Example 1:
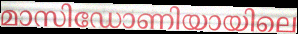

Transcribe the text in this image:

മാസിഡോണിയായിലെ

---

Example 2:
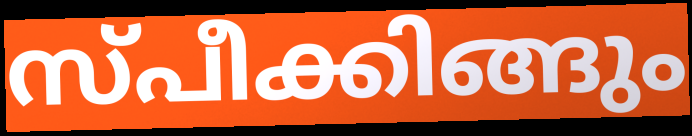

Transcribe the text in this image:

സ്പീക്കിങ്ങും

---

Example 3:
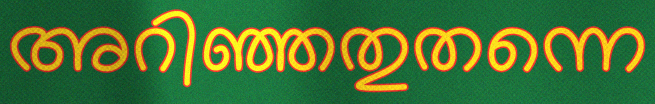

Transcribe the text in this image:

അറിഞ്ഞതുതന്നെ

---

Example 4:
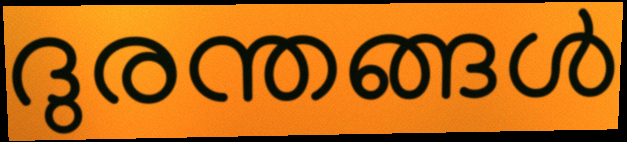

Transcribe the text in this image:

ദുരന്തങ്ങൾ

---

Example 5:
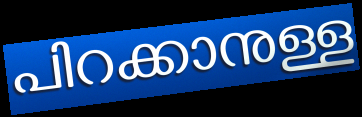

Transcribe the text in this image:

പിറക്കാനുള്ള